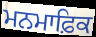
ਮਨਮਾਫ਼ਿਕ